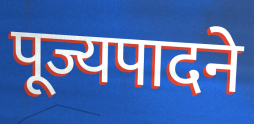
पूज्यपादने